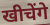
खीचेंगे